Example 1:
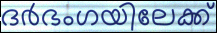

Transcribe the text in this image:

ദർഭംഗയിലേക്ക്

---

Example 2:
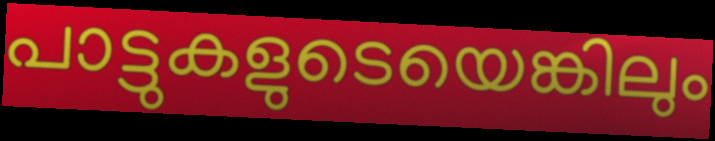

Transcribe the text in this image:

പാട്ടുകളുടെയെങ്കിലും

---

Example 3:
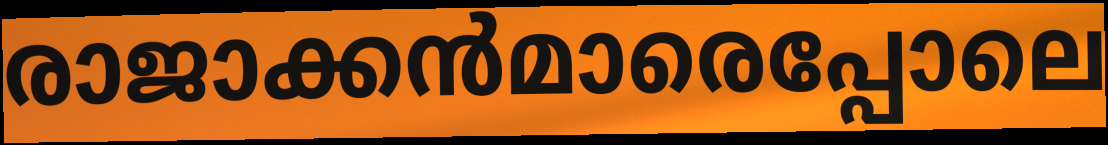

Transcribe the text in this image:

രാജാക്കൻമാരെപ്പോലെ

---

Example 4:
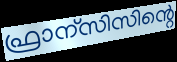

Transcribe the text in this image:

ഫ്രാന്സിസിന്റെ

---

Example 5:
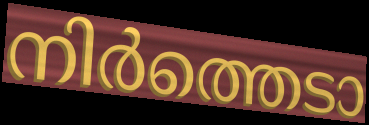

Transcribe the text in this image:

നിർത്തെടാ